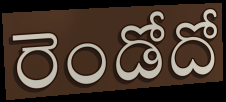
రెండోదో